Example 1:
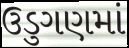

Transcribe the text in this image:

ઉડુગણમાં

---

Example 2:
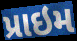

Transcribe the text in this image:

પ્રાઇમ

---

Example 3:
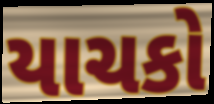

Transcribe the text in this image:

યાચકો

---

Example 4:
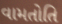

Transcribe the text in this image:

વામતોતિ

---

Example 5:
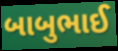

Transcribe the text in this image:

બાબુભાઈ